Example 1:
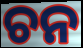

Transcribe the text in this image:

ଚନ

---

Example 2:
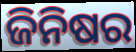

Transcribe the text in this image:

ଜିନିଷର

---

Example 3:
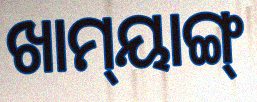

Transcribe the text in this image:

ଖାମ୍‌ୟାଙ୍ଗ୍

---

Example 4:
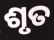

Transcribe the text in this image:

ଶୃତ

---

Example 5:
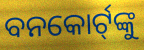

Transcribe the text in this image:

ବନକୋର୍ଟ୍‍ଙ୍କୁ